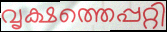
വൃക്ഷത്തെപ്പറ്റി